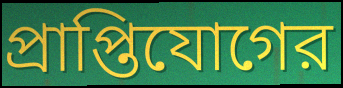
প্রাপ্তিযোগের